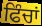
ਫਿੰਚਾਂ